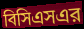
বিসিএসএর